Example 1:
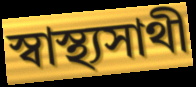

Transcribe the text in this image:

স্বাস্থ্যসাথী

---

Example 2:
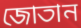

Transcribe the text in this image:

জোতান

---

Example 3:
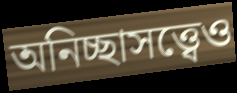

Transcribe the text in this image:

অনিচ্ছাসত্ত্বেও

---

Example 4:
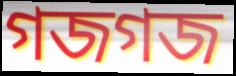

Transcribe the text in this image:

গজগজ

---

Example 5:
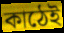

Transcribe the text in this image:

কাঠেই